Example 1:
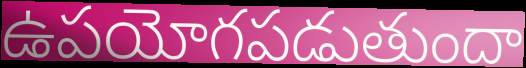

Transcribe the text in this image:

ఉపయోగపడుతుందా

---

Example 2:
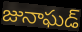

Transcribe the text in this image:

జునాఘడ్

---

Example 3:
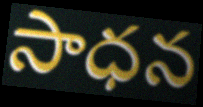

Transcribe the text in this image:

సాధన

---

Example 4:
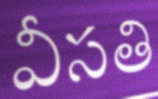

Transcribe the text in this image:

వీసతి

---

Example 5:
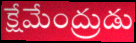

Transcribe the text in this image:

క్షేమేంద్రుడు